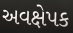
અવક્ષેપક